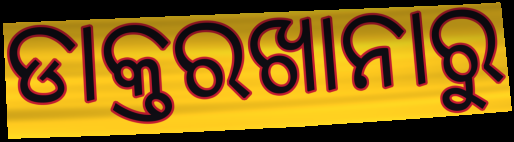
ଡାକ୍ତରଖାନାରୁ